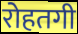
रोहतगी